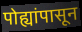
पोह्यांपासून